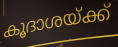
കൂദാശയ്ക്ക്